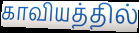
காவியத்தில்